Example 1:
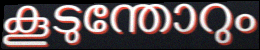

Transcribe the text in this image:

കൂടുന്തോറും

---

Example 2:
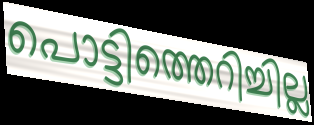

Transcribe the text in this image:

പൊട്ടിത്തെറിച്ചില്ല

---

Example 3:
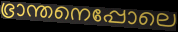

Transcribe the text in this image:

ഭ്രാന്തനെപ്പോലെ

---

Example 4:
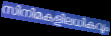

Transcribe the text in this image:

സിനിമകളിലധികവും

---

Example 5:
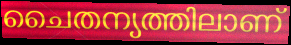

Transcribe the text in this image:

ചൈതന്യത്തിലാണ്